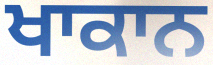
ਖਾਕਾਨ